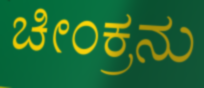
ಚೀಂಕ್ರನು